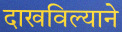
दाखविल्याने